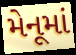
મેનૂમાં